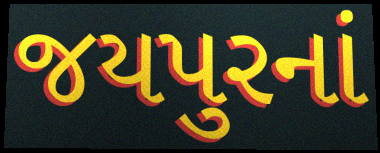
જયપુરનાં